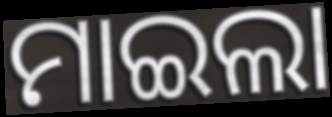
ମାଇଲା